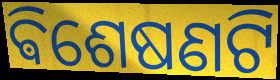
ଵିଶେଷଣଟି